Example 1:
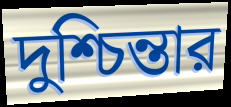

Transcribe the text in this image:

দুশ্চিন্তার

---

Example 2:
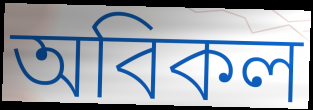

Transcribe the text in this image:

অবিকল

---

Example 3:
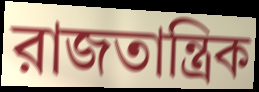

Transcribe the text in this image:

রাজতান্ত্রিক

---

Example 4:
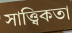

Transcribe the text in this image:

সাত্ত্বিকতা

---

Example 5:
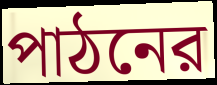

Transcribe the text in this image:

পাঠনের